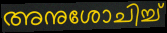
അനുശോചിച്ച്